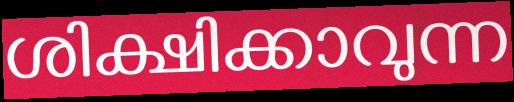
ശിക്ഷിക്കാവുന്ന